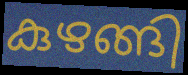
കുഴങ്ങി